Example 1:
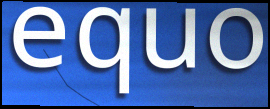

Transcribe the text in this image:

equo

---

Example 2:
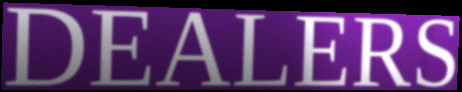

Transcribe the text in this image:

DEALERS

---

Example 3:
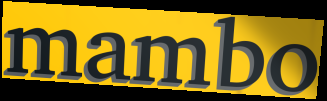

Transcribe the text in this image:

mambo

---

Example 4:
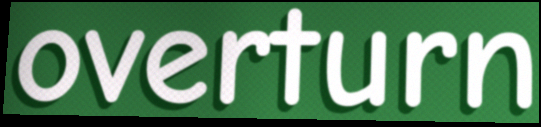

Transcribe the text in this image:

overturn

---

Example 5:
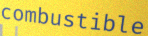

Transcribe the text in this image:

combustible